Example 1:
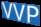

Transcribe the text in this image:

VVP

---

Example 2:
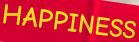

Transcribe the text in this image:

HAPPINESS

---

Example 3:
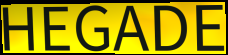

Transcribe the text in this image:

HEGADE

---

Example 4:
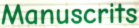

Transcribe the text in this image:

Manuscrits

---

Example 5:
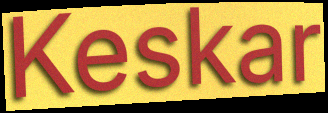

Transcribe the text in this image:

Keskar